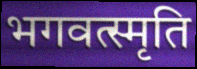
भगवत्स्मृति